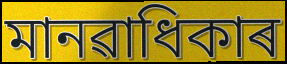
মানৱাধিকাৰ